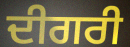
ਦੀਗਰੀ